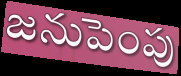
జనుపెంపు